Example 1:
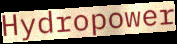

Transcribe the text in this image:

Hydropower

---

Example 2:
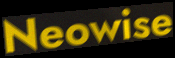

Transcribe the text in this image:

Neowise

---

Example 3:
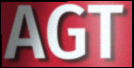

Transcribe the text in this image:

AGT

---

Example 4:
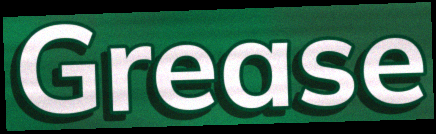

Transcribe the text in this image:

Grease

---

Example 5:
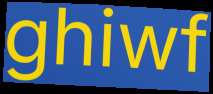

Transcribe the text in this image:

ghiwf